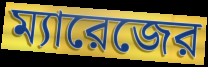
ম্যারেজের